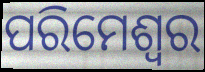
ପରିମେଶ୍ୱର